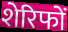
शेरिफों